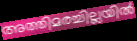
അത്തിമരച്ചില്ലയിൽ